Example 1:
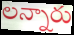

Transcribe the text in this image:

లన్నారు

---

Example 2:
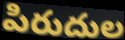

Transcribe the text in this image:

పిరుదుల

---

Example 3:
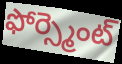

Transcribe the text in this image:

ఫోర్స్మెంట్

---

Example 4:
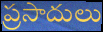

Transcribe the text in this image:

ప్రసాదులు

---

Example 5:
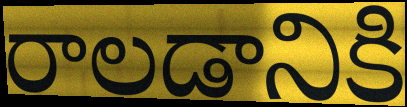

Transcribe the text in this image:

రాలడానికి